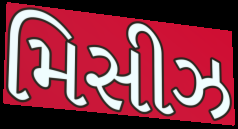
મિસીઝ